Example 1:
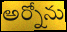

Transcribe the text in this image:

అర్నోను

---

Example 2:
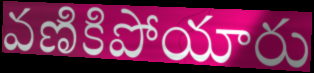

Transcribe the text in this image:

వణికిపోయారు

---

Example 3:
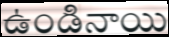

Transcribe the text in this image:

ఉండినాయి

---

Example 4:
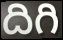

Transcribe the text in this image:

దిగి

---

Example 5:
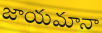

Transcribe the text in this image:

జాయమానా